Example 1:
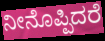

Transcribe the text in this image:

ನೀನೊಪ್ಪಿದರೆ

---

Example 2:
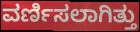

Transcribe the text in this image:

ವರ್ಣಿಸಲಾಗಿತ್ತು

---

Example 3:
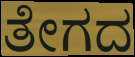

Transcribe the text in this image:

ತೇಗದ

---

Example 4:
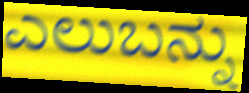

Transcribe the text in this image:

ಎಲುಬನ್ನು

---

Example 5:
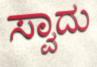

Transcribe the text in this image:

ಸ್ವಾದು